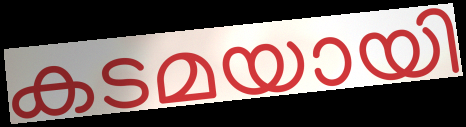
കടമയായി